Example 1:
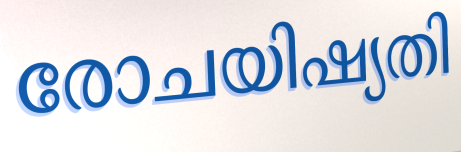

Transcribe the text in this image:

രോചയിഷ്യതി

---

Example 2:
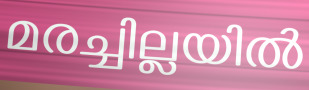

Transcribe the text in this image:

മരച്ചില്ലയിൽ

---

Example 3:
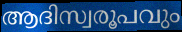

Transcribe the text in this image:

ആദിസ്വരൂപവും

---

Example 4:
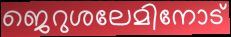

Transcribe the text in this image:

ജെറുശലേമിനോട്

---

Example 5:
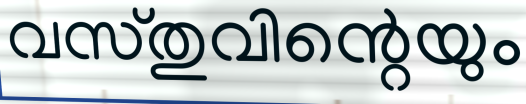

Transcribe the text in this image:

വസ്തുവിന്റെയും